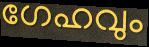
ഗേഹവും